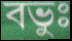
বভুঃ